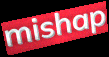
mishap